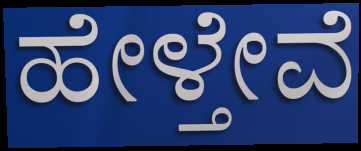
ಹೇಳ್ತೇವೆ